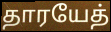
தாரயேத்